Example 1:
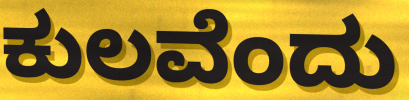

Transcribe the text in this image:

ಕುಲವೆಂದು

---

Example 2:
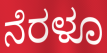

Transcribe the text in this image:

ನೆರಳೂ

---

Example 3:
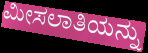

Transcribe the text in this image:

ಮೀಸಲಾತಿಯನ್ನು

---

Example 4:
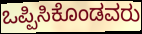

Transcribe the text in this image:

ಒಪ್ಪಿಸಿಕೊಂಡವರು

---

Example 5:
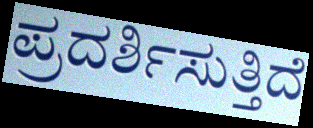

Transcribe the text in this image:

ಪ್ರದರ್ಶಿಸುತ್ತಿದೆ